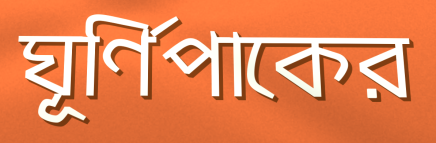
ঘূর্ণিপাকের